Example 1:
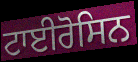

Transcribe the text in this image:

ਟਾਈਰੋਸਿਨ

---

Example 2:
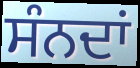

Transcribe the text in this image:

ਸੰਨਦਾਂ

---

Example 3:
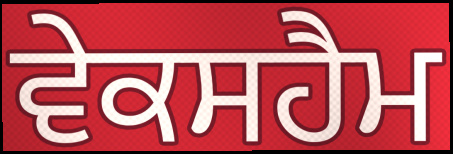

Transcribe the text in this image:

ਵੇਕਸਹੈਮ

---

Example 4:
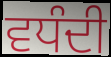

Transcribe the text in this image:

ਵਧੰਦੀ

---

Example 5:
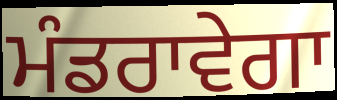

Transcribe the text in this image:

ਮੰਡਰਾਵੇਗਾ